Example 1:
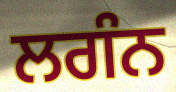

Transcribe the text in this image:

ਲਗੰਨ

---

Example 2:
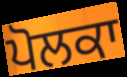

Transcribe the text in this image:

ਪੋਲਕਾ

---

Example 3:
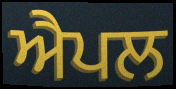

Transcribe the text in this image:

ਐਪਲ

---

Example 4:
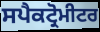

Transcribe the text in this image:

ਸਪੈਕਟ੍ਰੋਮੀਟਰ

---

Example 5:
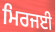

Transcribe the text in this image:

ਮਿਰਜਈ